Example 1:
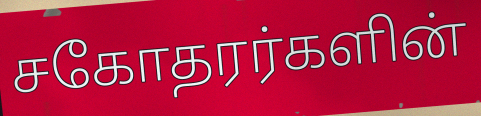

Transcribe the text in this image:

சகோதரர்களின்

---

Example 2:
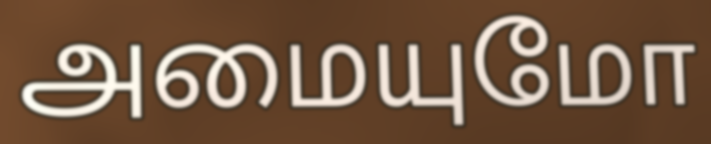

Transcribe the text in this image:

அமையுமோ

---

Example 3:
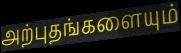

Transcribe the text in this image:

அற்புதங்களையும்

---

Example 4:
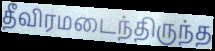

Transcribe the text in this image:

தீவிரமடைந்திருந்த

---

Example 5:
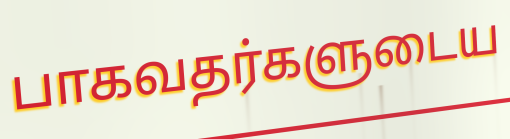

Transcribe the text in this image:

பாகவதர்களுடைய